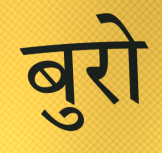
बुरो